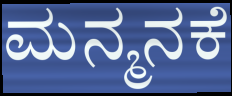
ಮನ್ಮನಕೆ